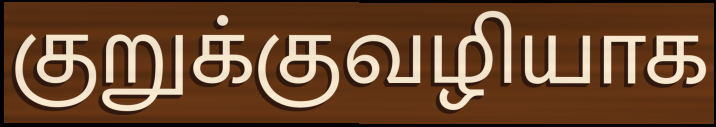
குறுக்குவழியாக